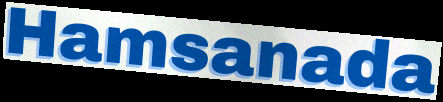
Hamsanada